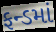
ફન્ડમાં